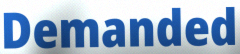
Demanded